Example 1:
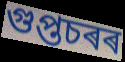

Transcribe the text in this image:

গুপ্তচৰৰ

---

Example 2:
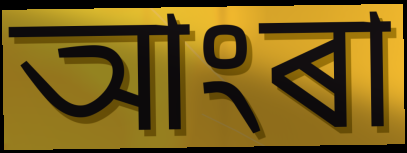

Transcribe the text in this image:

আংৰা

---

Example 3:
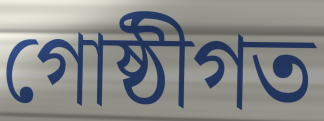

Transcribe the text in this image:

গোষ্ঠীগত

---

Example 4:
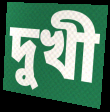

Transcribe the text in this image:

দুখী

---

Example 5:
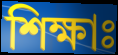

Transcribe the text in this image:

শিক্ষাঃ